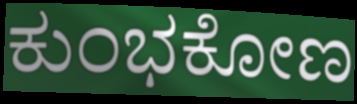
ಕುಂಭಕೋಣ